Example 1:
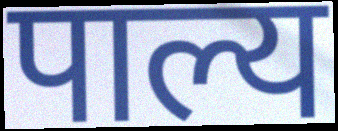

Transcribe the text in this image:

पाल्य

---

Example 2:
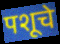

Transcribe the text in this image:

पशूचे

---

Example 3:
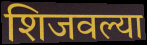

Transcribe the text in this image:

शिजवल्या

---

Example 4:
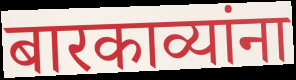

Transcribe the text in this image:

बारकाव्यांना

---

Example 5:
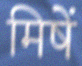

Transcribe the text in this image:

मिषें